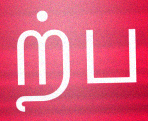
ற்ப